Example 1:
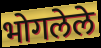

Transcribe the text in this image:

भोगलेले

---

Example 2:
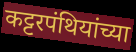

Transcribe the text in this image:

कट्टरपंथियांच्या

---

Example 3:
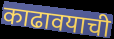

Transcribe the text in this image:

काढावयाची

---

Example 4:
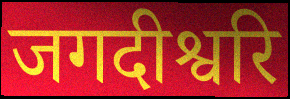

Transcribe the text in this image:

जगदीश्वरि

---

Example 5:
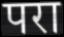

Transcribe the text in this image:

परा